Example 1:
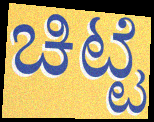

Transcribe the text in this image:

ಚಿಟ್ಟೆ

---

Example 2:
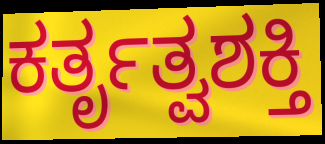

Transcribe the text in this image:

ಕರ್ತೃತ್ವಶಕ್ತಿ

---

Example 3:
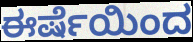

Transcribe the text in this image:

ಈರ್ಷೆಯಿಂದ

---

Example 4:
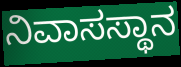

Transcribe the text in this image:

ನಿವಾಸಸ್ಥಾನ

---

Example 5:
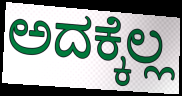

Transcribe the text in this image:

ಅದಕ್ಕೆಲ್ಲ